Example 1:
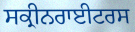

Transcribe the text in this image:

ਸਕ੍ਰੀਨਰਾਈਟਰਸ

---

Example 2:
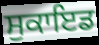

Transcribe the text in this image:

ਸੁਕਾਇਡ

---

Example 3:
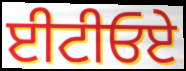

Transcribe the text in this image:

ਈਟੀਓਏ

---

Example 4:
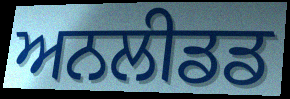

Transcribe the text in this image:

ਅਨਲੀਡਡ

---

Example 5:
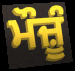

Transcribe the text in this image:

ਮੌਜ਼ੂੰ